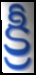
క్రీ